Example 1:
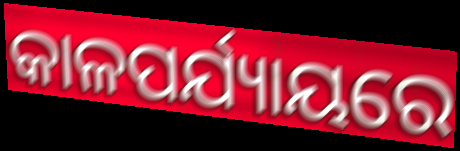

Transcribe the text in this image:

କାଳପର୍ଯ୍ୟାୟରେ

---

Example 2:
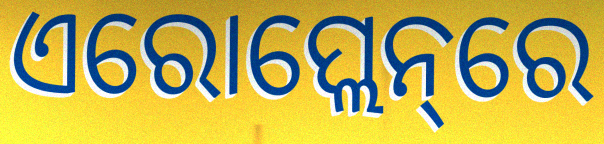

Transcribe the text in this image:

ଏରୋପ୍ଲେନ୍‌ରେ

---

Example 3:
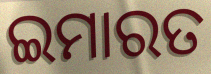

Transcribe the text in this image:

ଇମାରତ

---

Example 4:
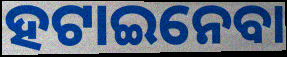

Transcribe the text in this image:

ହଟାଇନେବା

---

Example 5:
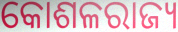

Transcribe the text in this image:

କୋଶଳରାଜ୍ୟ